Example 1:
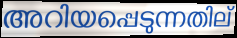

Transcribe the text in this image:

അറിയപ്പെടുന്നതില്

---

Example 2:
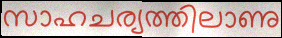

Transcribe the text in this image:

സാഹചര്യത്തിലാണു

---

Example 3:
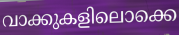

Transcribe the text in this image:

വാക്കുകളിലൊക്കെ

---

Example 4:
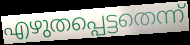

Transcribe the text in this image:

എഴുതപ്പെട്ടതെന്ന്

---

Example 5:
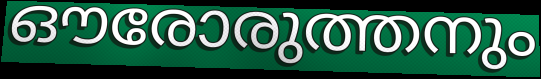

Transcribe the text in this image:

ഔരോരുത്തനും